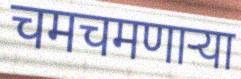
चमचमणार्‍या